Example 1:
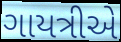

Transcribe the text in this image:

ગાયત્રીએ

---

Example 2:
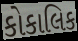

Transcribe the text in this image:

કોકાલિક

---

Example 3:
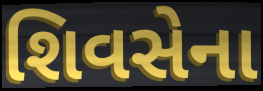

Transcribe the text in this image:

શિવસેના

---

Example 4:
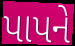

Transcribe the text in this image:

પાપને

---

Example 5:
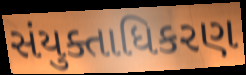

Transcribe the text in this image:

સંયુક્તાધિકરણ